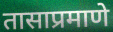
तासाप्रमाणे